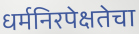
धर्मनिरपेक्षतेचा